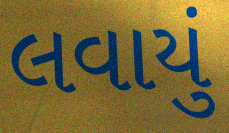
લવાયું